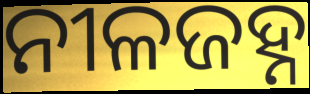
ନୀଳଜହ୍ନ